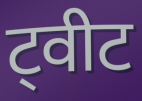
ट्‌वीट